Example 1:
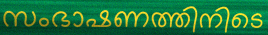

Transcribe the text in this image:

സംഭാഷണത്തിനിടെ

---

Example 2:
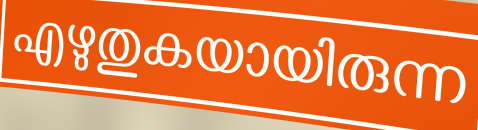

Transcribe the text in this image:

എഴുതുകയായിരുന്ന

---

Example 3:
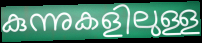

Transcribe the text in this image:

കുന്നുകളിലുള്ള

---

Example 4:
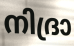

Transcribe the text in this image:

നിദ്രാ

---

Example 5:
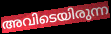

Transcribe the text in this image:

അവിടെയിരുന്ന